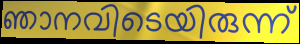
ഞാനവിടെയിരുന്ന്